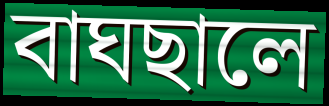
বাঘছালে